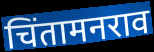
चिंतामनराव